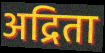
अद्रिता